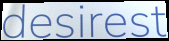
desirest